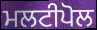
ਮਲਟੀਪੋਲ